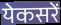
येकसरें